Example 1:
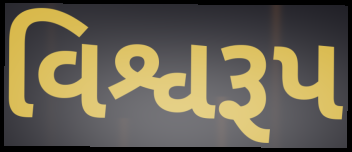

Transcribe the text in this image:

વિશ્વરૂપ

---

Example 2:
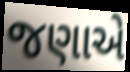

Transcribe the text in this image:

જણાએ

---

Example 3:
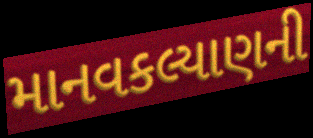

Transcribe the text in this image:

માનવકલ્યાણની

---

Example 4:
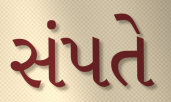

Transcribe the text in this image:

સંપતે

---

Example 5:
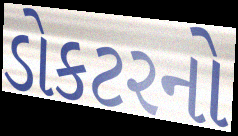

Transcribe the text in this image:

ડોકટરનો